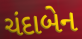
ચંદાબેન